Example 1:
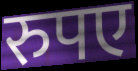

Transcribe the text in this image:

रुपए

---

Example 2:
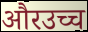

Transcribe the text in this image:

औरउच्च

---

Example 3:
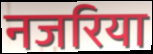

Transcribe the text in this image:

नजरिया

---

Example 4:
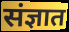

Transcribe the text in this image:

संज्ञात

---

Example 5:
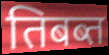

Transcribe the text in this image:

तिबब्त